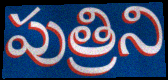
పుత్రిని